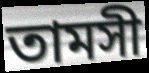
তামসী